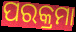
ପରକ୍ରମା